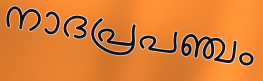
നാദപ്രപഞ്ചം